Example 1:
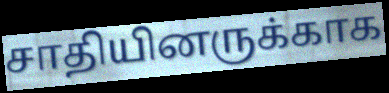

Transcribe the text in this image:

சாதியினருக்காக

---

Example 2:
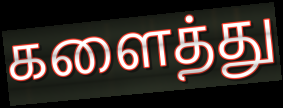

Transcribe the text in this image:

களைத்து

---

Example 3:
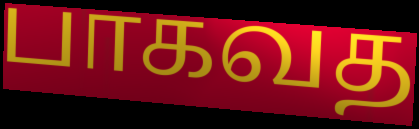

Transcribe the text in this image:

பாகவத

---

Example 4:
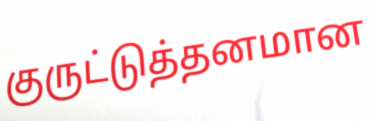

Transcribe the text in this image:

குருட்டுத்தனமான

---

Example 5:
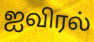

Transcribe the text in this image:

ஐவிரல்